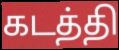
கடத்தி